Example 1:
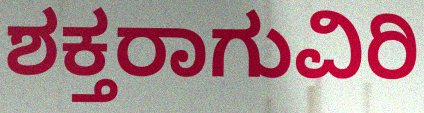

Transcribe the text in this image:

ಶಕ್ತರಾಗುವಿರಿ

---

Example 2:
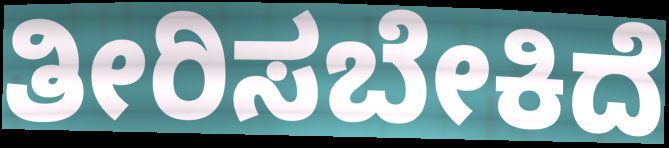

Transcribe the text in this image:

ತೀರಿಸಬೇಕಿದೆ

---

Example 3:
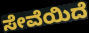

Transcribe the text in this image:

ಸೇವೆಯಿದೆ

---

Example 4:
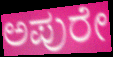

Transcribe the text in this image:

ಅಪುರೇ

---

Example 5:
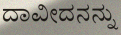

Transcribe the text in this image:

ದಾವೀದನನ್ನು